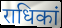
राधिकां